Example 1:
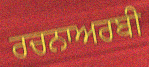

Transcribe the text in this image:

ਰਚਨਾਅਰਬੀ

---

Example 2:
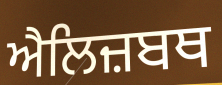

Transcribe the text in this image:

ਐਲਿਜ਼ਬਥ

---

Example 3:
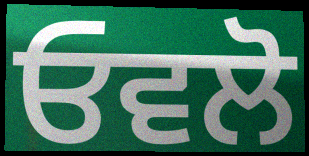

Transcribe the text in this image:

ਓਵਲੋ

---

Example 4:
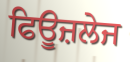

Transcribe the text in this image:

ਫਿਊਜ਼ਲੇਜ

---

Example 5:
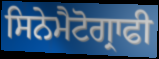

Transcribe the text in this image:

ਸਿਨੇਮੈਟੋਗ੍ਰਾਫੀ